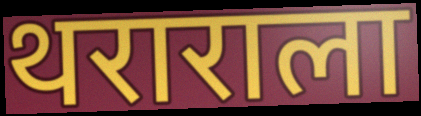
थराराला